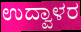
ಉದ್ವಾಳರ